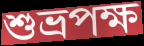
শুভ্রপক্ষ